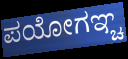
ಪಯೋಗಞ್ಚ